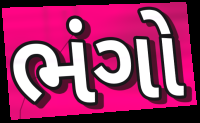
ભંગો